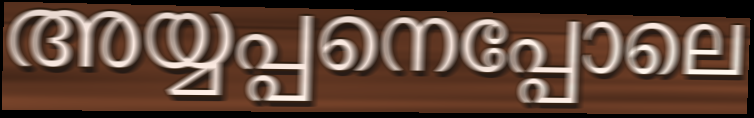
അയ്യപ്പനെപ്പോലെ